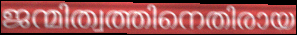
ജന്മിത്വത്തിനെതിരായ